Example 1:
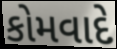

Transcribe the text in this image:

કોમવાદે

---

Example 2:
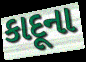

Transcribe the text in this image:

કાદૂના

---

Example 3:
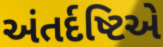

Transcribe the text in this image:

અંતર્દષ્ટિએ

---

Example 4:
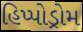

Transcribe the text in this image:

હિપ્પોડ્રોમ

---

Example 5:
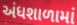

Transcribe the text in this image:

અંધશાળામાં